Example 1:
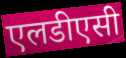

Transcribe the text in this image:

एलडीएसी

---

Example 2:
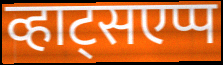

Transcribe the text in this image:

व्हाट्सएप्प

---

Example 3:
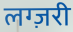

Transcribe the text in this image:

लग्ज़री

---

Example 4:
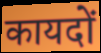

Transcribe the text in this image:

कायदों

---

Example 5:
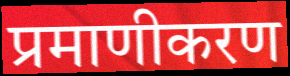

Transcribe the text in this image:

प्रमाणीकरण